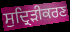
ਸੁਦ੍ਰਿੜੀਕਰਣ